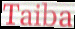
Taiba